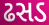
ઢસડ